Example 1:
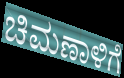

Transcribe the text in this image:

ಚಿಮಣಾಳಿಗೆ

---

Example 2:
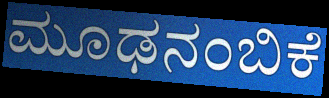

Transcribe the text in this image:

ಮೂಢನಂಬಿಕೆ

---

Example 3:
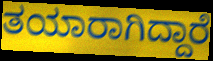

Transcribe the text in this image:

ತಯಾರಾಗಿದ್ದಾರೆ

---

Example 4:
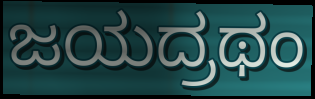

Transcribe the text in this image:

ಜಯದ್ರಥಂ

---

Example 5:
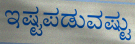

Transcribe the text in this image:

ಇಷ್ಟಪಡುವಷ್ಟು